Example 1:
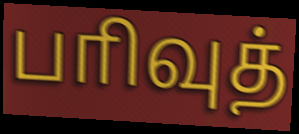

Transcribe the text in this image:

பரிவுத்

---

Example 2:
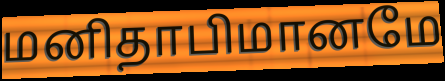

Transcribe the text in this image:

மனிதாபிமானமே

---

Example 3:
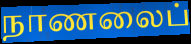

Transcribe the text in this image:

நாணலைப்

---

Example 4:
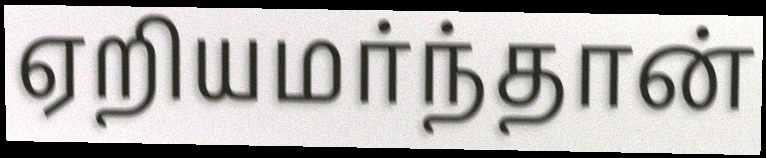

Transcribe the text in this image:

ஏறியமர்ந்தான்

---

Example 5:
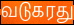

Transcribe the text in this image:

வடுகரது